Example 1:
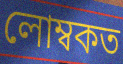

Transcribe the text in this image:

লোম্বকত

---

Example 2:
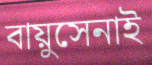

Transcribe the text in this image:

বায়ুসেনাই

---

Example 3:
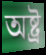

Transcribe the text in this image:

অষ্ট্ৰ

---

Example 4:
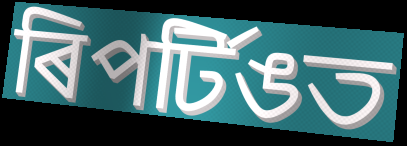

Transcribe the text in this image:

ৰিপৰ্টিঙত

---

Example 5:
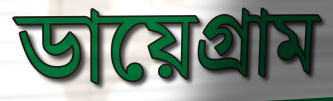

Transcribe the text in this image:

ডায়েগ্ৰাম